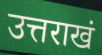
उत्तराखं